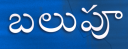
బలుపూ